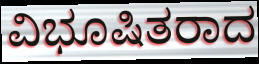
ವಿಭೂಷಿತರಾದ